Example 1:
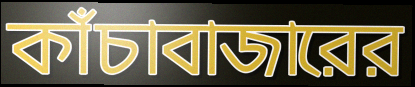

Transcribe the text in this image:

কাঁচাবাজারের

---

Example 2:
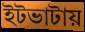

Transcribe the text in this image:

ইটভাটায়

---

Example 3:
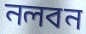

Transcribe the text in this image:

নলবন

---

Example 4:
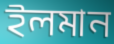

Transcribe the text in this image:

ইলমান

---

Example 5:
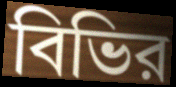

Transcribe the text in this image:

বিভির